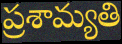
ప్రశామ్యతి